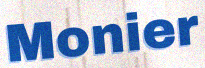
Monier